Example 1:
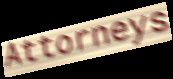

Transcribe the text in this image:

Attorneys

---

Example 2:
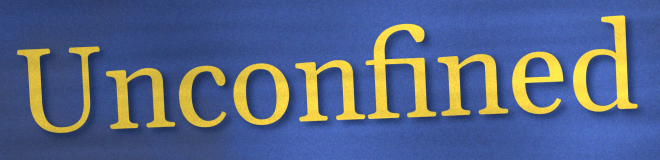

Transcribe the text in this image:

Unconfined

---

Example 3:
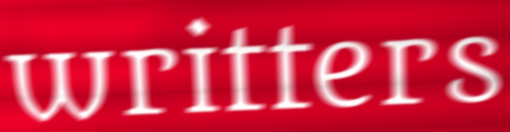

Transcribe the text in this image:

writters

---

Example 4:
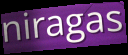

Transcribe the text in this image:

niragas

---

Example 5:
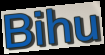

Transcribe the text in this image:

Bihu